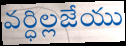
వర్ధిల్లజేయు